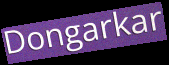
Dongarkar